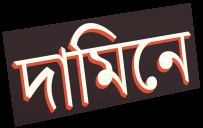
দামিনে